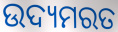
ଉଦ୍ୟମରତ